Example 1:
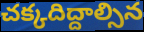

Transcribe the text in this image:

చక్కదిద్దాల్సిన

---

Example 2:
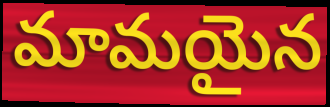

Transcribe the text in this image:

మామయైన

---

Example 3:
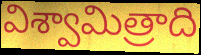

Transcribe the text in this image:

విశ్వామిత్రాది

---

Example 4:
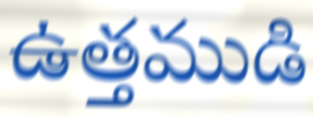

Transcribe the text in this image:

ఉత్తముడి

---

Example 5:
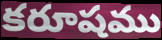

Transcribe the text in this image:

కరూషము